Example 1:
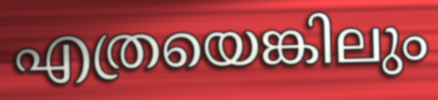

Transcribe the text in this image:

എത്രയെങ്കിലും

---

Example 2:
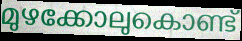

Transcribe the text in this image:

മുഴക്കോലുകൊണ്ട്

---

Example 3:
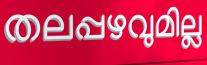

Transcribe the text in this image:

തലപ്പഴവുമില്ല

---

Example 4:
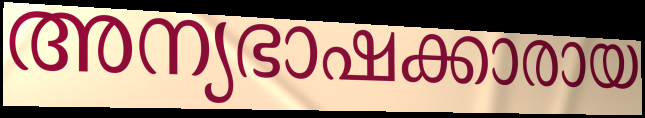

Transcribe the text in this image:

അന്യഭാഷക്കാരായ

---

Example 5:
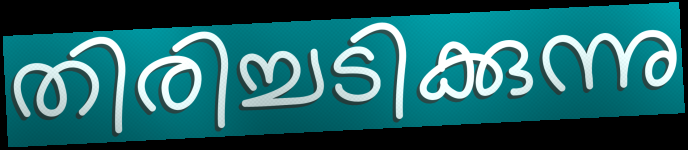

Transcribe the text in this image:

തിരിച്ചടിക്കുന്നു